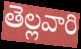
తెల్లవారి